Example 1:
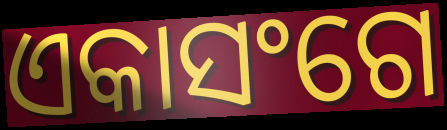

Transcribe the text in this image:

ଏକାସଂଗେ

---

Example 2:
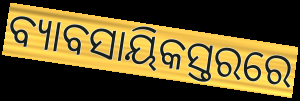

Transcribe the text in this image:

ବ୍ୟାବସାୟିକସ୍ତରରେ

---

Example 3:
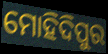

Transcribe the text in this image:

ମୋହିଦିପୁର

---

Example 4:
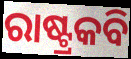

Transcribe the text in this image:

ରାଷ୍ଟ୍ରକବି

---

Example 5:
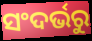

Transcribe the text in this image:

ସଂଦର୍ଭରୁ